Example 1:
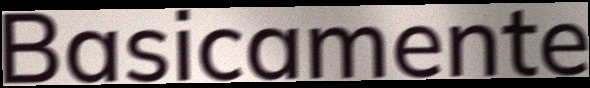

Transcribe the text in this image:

Basicamente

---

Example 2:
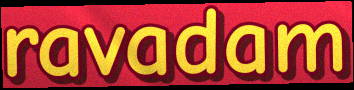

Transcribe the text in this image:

ravadam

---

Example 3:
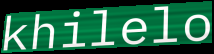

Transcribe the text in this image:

khilelo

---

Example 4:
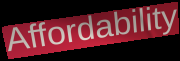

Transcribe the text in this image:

Affordability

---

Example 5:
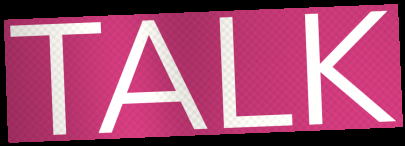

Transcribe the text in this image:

TALK